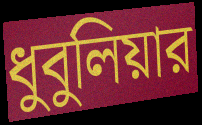
ধুবুলিয়ার